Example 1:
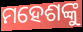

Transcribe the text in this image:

ମହେଶଙ୍କୁ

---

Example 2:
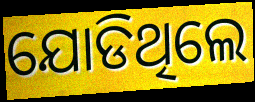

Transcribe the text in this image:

ଯୋଡିଥିଲେ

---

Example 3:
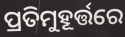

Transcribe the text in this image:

ପ୍ରତିମୁହୂର୍ତ୍ତରେ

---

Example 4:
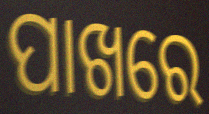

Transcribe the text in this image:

ପାଖରେ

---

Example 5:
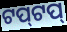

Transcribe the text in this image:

ଟପ୍‌ଟପ୍